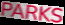
PARKS